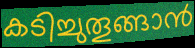
കടിച്ചുതൂങ്ങാൻ